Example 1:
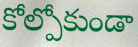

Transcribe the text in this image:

కోల్పోకుండా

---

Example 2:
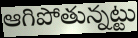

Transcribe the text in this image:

ఆగిపోతున్నట్టు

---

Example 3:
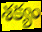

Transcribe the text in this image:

శక్యం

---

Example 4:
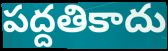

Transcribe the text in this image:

పద్దతికాదు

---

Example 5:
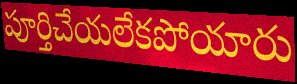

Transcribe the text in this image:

పూర్తిచేయలేకపోయారు